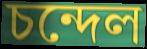
চন্দেল